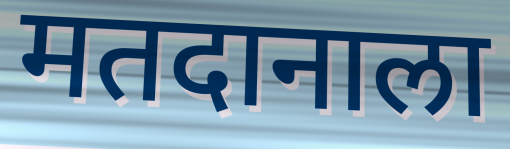
मतदानाला